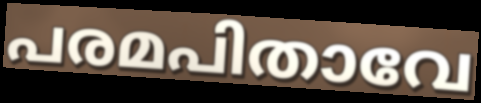
പരമപിതാവേ